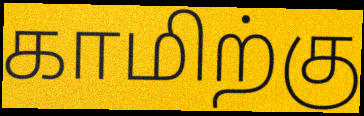
காமிற்கு